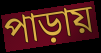
পাড়ায়